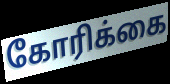
கோரிக்கை